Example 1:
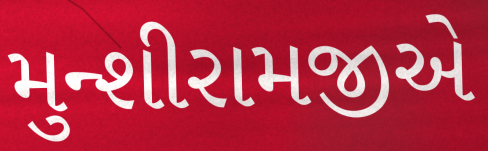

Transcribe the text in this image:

મુન્શીરામજીએ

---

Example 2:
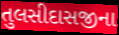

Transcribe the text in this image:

તુલસીદાસજીના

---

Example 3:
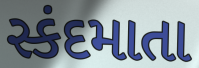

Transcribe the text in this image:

સ્કંદમાતા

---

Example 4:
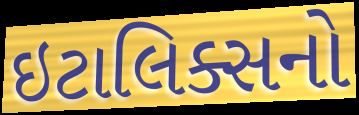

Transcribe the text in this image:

ઇટાલિક્સનો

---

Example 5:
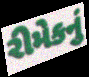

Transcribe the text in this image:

રીમેકનું